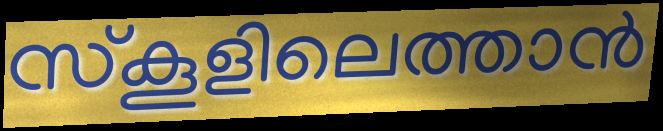
സ്കൂളിലെത്താൻ